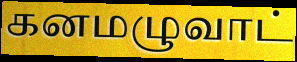
கனமழுவாட்